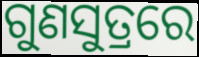
ଗୁଣସୁତ୍ରରେ